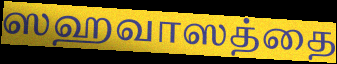
ஸஹவாஸத்தை